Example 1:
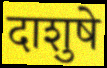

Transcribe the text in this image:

दाशुषे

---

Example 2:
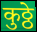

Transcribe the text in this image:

कुठ्ठे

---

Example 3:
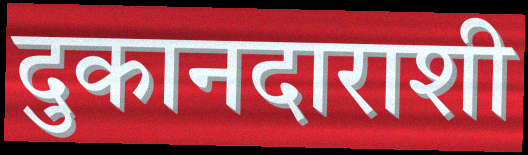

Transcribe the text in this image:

दुकानदाराशी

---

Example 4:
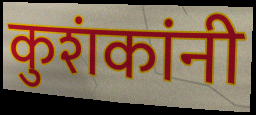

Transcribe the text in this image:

कुशंकांनी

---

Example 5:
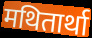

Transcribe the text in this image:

मथितार्था